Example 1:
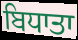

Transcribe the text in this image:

ਬਿਧਾਤਾ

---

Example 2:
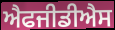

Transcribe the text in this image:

ਐਫਜੀਡੀਐਸ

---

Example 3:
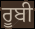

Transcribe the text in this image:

ਰੂਬੀ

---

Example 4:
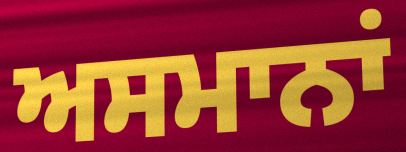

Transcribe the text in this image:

ਅਸਮਾਨਾਂ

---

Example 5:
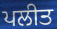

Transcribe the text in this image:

ਪਲੀਤ